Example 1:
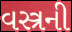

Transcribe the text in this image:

વસ્ત્રની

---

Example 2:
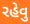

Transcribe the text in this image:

રહેવુ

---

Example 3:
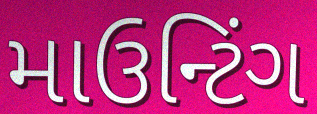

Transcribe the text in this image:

માઉન્ટિંગ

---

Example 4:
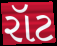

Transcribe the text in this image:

રૉટ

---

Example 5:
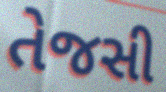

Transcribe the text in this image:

તેજસી